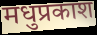
मधुप्रकाश